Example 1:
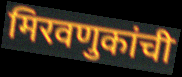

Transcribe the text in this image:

मिरवणुकांची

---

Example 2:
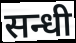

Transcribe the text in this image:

सन्धी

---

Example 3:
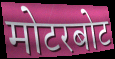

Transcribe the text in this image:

मोटरबोट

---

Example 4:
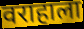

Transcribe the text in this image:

वराहाला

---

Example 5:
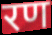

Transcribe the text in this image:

रण